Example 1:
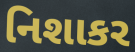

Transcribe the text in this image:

નિશાકર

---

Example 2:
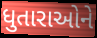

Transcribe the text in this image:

ધુતારાઓને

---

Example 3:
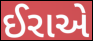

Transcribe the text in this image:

ઈરાએ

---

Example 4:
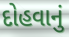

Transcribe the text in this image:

દોહવાનું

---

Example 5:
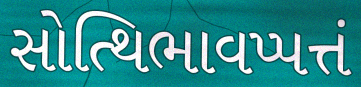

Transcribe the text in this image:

સોત્થિભાવપ્પત્તં